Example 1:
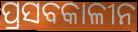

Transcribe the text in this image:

ପ୍ରସବକାଳୀନ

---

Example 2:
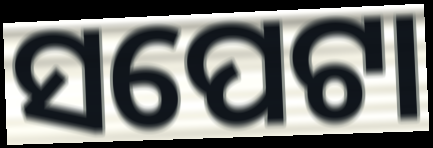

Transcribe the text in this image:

ସପେଟା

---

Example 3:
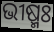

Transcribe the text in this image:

ଭୀଷ୍ମଃ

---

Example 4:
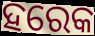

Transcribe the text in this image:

ହରେକ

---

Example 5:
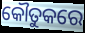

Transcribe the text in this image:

କୌତୁକରେ